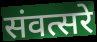
संवत्सरे